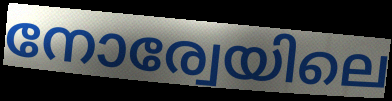
നോര്വേയിലെ